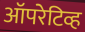
ऑपरेटिव्ह